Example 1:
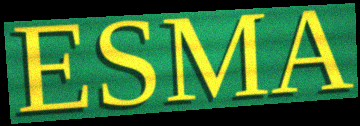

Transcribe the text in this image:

ESMA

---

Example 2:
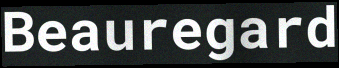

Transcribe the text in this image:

Beauregard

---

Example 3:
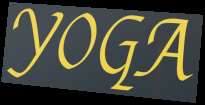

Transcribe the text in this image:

YOGA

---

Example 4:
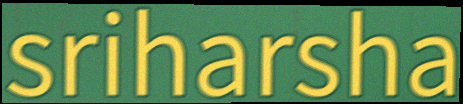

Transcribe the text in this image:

sriharsha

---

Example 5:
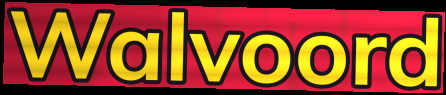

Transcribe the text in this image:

Walvoord